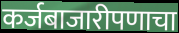
कर्जबाजारीपणाचा